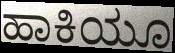
ಹಾಕಿಯೂ